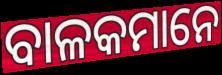
ବାଳକମାନେ